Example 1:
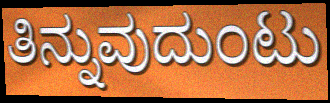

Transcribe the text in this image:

ತಿನ್ನುವುದುಂಟು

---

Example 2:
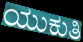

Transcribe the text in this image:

ಯುಕುತಿ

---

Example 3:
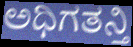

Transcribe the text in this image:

ಅಧಿಗತನ್ತಿ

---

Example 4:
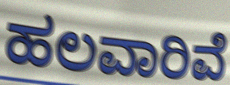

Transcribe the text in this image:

ಹಲವಾರಿವೆ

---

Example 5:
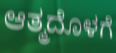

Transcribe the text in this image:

ಆತ್ಮದೊಳಗೆ